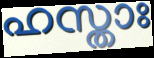
ഹസ്താഃ